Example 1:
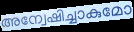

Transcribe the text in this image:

അന്വേഷിച്ചാകുമോ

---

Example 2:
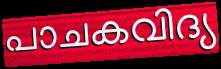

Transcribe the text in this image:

പാചകവിദ്യ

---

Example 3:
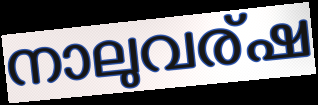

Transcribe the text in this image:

നാലുവര്ഷ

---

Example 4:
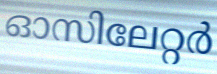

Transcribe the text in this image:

ഓസിലേറ്റർ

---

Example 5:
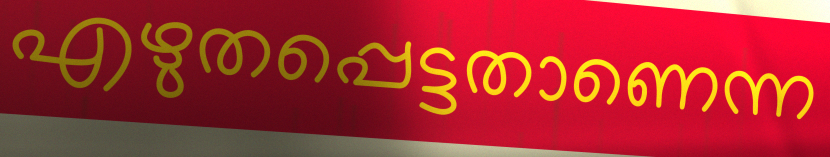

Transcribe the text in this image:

എഴുതപ്പെട്ടതാണെന്ന